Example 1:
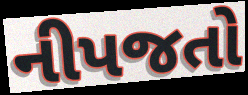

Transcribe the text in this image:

નીપજતો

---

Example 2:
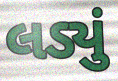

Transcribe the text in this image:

લડ્યું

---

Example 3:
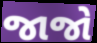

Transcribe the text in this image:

જાજો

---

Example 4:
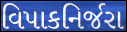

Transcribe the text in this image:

વિપાકનિર્જરા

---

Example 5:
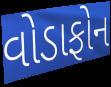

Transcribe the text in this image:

વોડાફોન